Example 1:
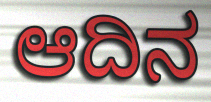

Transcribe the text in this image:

ಆದಿನ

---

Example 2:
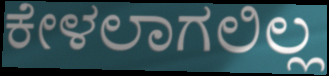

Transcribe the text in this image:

ಕೇಳಲಾಗಲಿಲ್ಲ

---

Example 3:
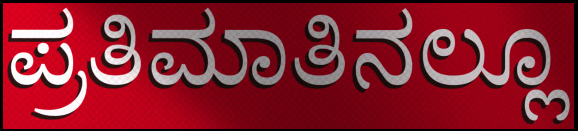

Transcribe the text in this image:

ಪ್ರತಿಮಾತಿನಲ್ಲೂ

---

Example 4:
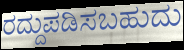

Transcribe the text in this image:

ರದ್ದುಪಡಿಸಬಹುದು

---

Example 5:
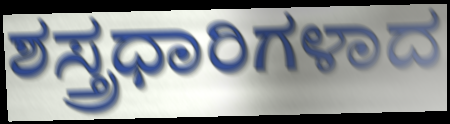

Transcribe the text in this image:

ಶಸ್ತ್ರಧಾರಿಗಳಾದ